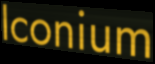
Iconium